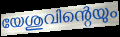
യേശുവിന്റെയും